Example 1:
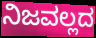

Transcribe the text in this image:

ನಿಜವಲ್ಲದ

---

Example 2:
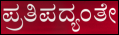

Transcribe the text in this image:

ಪ್ರತಿಪದ್ಯಂತೇ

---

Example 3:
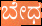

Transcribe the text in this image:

ಬೇಧ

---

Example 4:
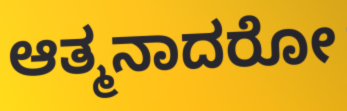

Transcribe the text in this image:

ಆತ್ಮನಾದರೋ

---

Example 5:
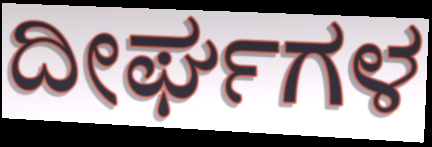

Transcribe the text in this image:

ದೀರ್ಘಗಳ